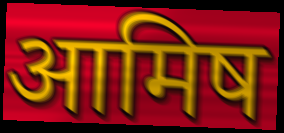
आमिष